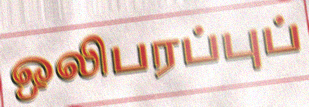
ஒலிபரப்புப்